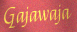
Gajawaja